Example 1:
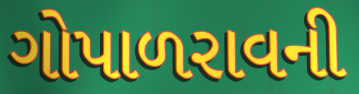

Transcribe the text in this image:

ગોપાળરાવની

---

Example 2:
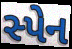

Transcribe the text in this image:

સ્પેન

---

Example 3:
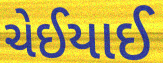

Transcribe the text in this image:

ચેઈયાઈ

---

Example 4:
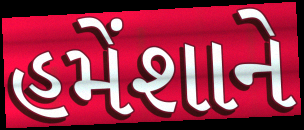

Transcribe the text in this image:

હમેંશાને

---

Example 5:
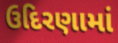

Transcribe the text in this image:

ઉદિરણામાં